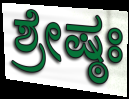
ಶ್ರೇಷ್ಠಃ